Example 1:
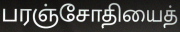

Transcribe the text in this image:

பரஞ்சோதியைத்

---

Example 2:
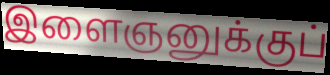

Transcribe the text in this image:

இளைஞனுக்குப்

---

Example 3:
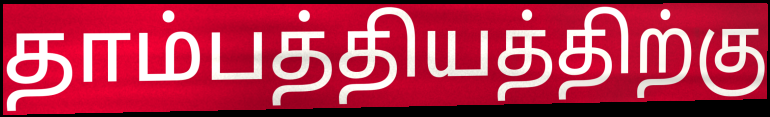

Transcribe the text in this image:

தாம்பத்தியத்திற்கு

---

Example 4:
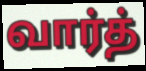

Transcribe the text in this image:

வார்த்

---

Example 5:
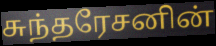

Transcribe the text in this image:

சுந்தரேசனின்